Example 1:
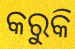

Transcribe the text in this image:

କରୁକି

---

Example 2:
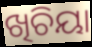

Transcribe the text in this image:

ଖିଚିୟା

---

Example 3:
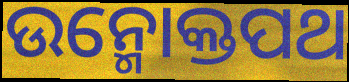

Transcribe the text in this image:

ଉନ୍ମୋକ୍ତପଥ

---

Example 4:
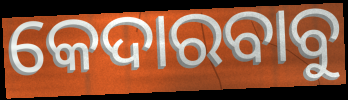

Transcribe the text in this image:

କେଦାରବାବୁ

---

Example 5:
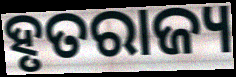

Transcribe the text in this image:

ହୃତରାଜ୍ୟ